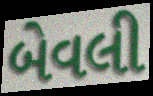
બેવલી